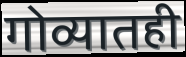
गोव्यातही